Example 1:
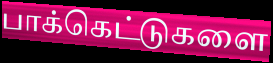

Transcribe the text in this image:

பாக்கெட்டுகளை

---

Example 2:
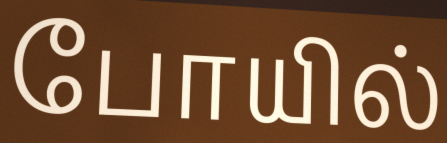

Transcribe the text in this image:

போயில்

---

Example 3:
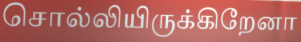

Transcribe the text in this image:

சொல்லியிருக்கிறேனா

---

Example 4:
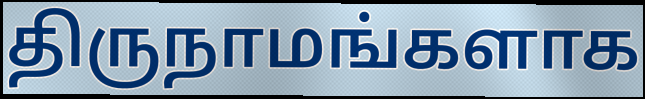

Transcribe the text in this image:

திருநாமங்களாக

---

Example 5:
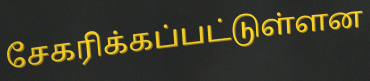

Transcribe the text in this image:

சேகரிக்கப்பட்டுள்ளன